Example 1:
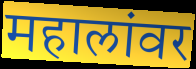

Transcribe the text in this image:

महालांवर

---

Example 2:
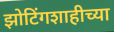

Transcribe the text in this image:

झोटिंगशाहीच्या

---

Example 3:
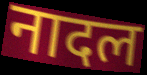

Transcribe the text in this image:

नादल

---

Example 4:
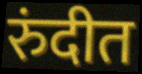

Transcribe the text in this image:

रुंदीत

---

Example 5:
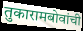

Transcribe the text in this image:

तुकारामबोवांची